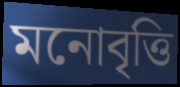
মনোবৃত্তি